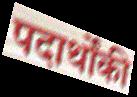
पदार्थोंकी